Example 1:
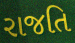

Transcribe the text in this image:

રાજતિ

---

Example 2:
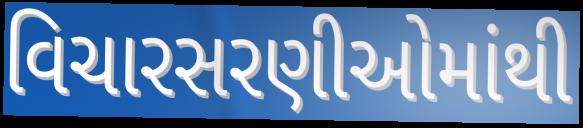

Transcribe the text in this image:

વિચારસરણીઓમાંથી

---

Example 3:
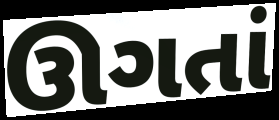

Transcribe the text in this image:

ઊગતાં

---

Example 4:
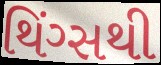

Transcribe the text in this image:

થિંગ્સથી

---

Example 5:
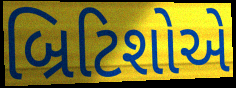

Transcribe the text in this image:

બ્રિટિશોએ